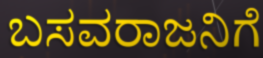
ಬಸವರಾಜನಿಗೆ